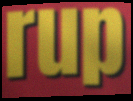
rup